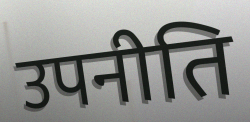
उपनीति